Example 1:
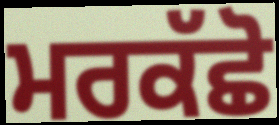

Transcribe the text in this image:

ਮਰਕੱਛੋ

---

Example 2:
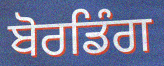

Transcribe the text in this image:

ਬੋਰਡਿੰਗ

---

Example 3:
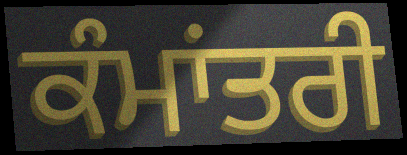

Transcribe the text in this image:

ਕੰਮਾਂਤਰੀ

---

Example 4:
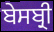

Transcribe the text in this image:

ਬੇਸਬ੍ਰੀ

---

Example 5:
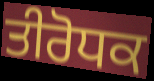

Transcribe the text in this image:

ਤੀਰੋਧਕ